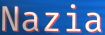
Nazia